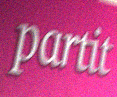
partit